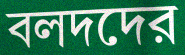
বলদদের